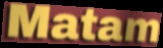
Matam